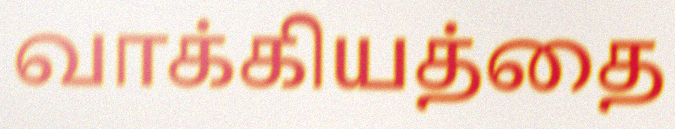
வாக்கியத்தை